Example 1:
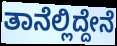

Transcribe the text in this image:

ತಾನೆಲ್ಲಿದ್ದೇನೆ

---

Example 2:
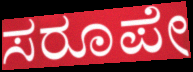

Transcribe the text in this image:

ಸರೂಪೇ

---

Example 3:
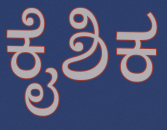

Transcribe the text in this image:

ಕೈಶಿಕ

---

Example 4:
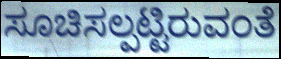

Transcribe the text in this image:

ಸೂಚಿಸಲ್ಪಟ್ಟಿರುವಂತೆ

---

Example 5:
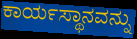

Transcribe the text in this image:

ಕಾರ್ಯಸ್ಥಾನವನ್ನು